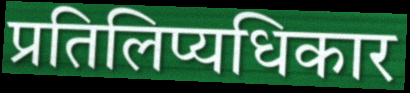
प्रतिलिप्यधिकार